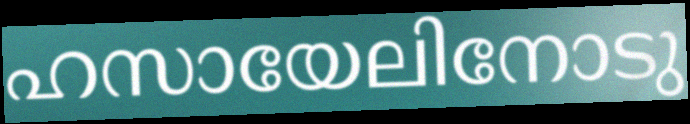
ഹസായേലിനോടു